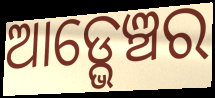
ଆଡ୍ଭେଞ୍ଚର